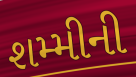
શમ્મીની